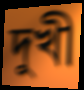
দুখী